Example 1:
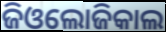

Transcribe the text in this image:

ଜିଓଲୋଜିକାଲ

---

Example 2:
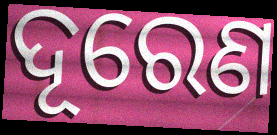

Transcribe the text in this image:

ଦୂରେଣ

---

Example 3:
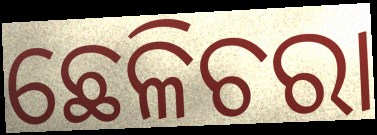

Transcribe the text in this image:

ଛେଳିଚରା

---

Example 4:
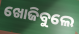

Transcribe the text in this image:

ଖୋଜିବୁଲେ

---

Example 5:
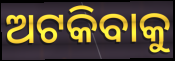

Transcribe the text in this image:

ଅଟକିବାକୁ